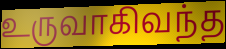
உருவாகிவந்த